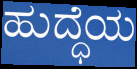
ಹುದ್ಧೆಯ